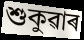
শুকুৱাৰ